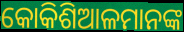
କୋକିଶିଆଳମାନଙ୍କ